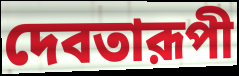
দেবতারূপী